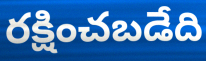
రక్షించబడేది